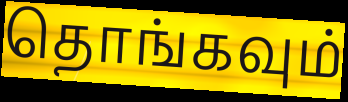
தொங்கவும்